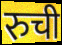
रुची